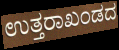
ಉತ್ತರಾಖಂಡದ